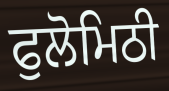
ਫੁਲੋਮਿਠੀ